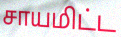
சாயமிட்ட